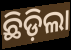
ଛିଡ଼ିଲା